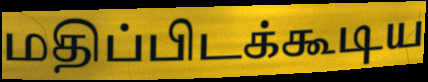
மதிப்பிடக்கூடிய